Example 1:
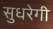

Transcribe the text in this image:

सुधरेगी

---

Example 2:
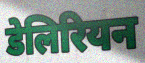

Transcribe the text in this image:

डेलिरियन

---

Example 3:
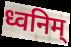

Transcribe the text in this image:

ध्वनिम्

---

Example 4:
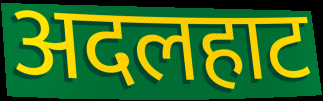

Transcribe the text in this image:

अदलहाट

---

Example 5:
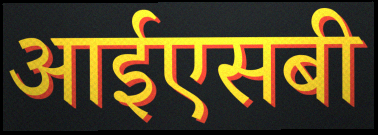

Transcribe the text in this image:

आईएसबी